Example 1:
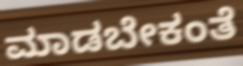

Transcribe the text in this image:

ಮಾಡಬೇಕಂತೆ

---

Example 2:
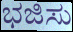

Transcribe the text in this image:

ಭಜಿಸು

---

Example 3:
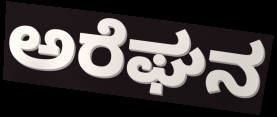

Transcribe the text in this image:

ಅರೆಘನ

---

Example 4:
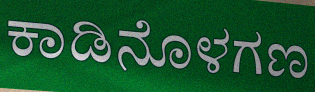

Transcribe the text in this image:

ಕಾಡಿನೊಳಗಣ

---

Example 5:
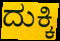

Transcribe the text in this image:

ದುಕ್ಕಿ